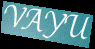
VAYU